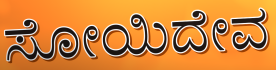
ಸೋಯಿದೇವ